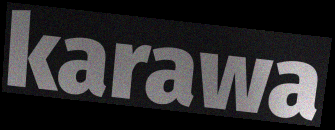
karawa